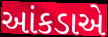
આંકડાએ